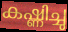
കഷ്ണിച്ചു